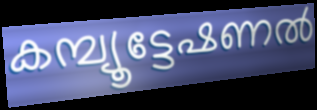
കമ്പ്യൂട്ടേഷണൽ